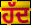
ਹੱਦ